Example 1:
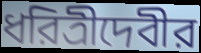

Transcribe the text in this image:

ধরিত্রীদেবীর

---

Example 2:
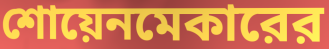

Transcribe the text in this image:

শোয়েনমেকারের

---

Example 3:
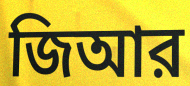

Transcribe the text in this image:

জিআর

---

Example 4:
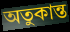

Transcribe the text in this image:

অতুকান্ত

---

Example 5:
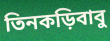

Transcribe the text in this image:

তিনকড়িবাবু